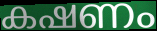
കഷണം